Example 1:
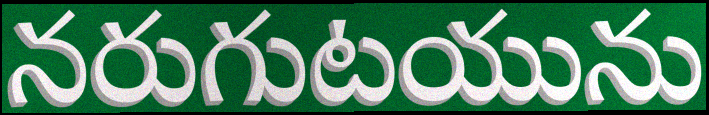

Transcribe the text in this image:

నరుగుటయును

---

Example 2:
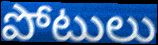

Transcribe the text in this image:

పోటులు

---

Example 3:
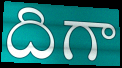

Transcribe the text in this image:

దిగా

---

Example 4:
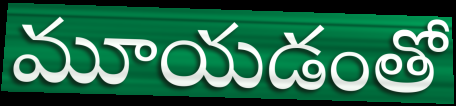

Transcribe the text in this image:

మూయడంతో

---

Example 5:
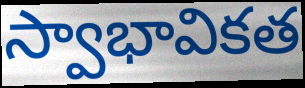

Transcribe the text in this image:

స్వాభావికత